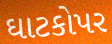
ઘાટકોપર